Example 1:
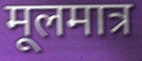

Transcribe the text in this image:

मूलमात्र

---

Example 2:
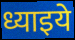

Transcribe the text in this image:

ध्याइये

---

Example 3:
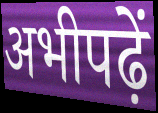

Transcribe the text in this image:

अभीपढ़ें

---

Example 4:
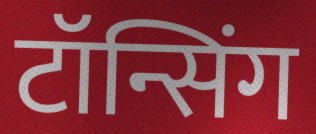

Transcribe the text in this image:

टॉन्सिंग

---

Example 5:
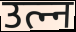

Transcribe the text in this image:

उत्न्न